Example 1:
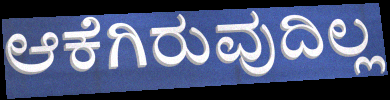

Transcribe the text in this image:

ಆಕೆಗಿರುವುದಿಲ್ಲ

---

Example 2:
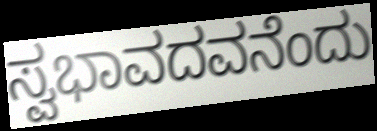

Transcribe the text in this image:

ಸ್ವಭಾವದವನೆಂದು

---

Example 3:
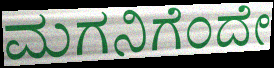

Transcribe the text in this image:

ಮಗನಿಗೆಂದೇ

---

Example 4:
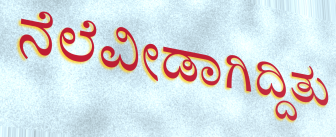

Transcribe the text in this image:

ನೆಲೆವೀಡಾಗಿದ್ದಿತು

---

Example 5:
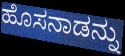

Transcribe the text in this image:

ಹೊಸನಾಡನ್ನು